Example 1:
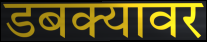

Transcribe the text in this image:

डबक्यावर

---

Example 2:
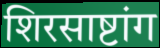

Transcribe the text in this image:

शिरसाष्टांग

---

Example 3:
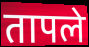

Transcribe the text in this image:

तापले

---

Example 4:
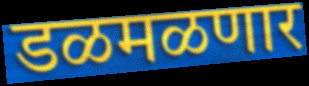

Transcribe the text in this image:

डळमळणार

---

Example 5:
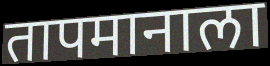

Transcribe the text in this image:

तापमानाला